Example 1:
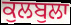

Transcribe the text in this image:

ਕੁਲਬੁਲਾ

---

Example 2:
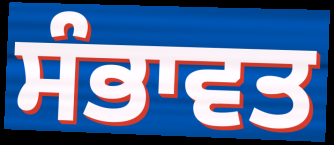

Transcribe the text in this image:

ਸੰਭਾਵਤ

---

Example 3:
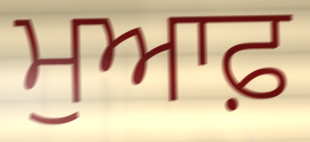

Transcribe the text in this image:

ਮੁਆਫ਼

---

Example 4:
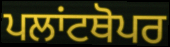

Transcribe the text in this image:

ਪਲਾਂਟਥੋਪਰ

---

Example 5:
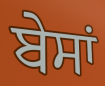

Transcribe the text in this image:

ਬੇਸਾਂ